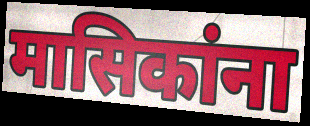
मासिकांना